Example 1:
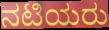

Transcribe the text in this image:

ನಟಿಯರು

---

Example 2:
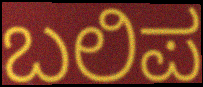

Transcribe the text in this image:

ಬಲಿಪ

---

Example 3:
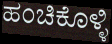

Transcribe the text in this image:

ಹಂಚಿಕೊಳ್ಳಿ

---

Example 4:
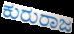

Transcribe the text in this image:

ಕುರುರಾಜ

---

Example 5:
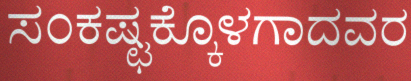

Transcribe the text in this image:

ಸಂಕಷ್ಟಕ್ಕೊಳಗಾದವರ